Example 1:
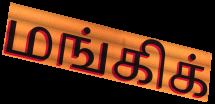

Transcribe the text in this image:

மங்கிக்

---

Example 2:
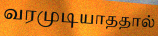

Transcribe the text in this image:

வரமுடியாததால்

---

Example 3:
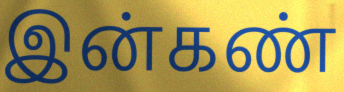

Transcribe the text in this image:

இன்கண்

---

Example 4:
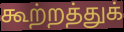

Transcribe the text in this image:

கூற்றத்துக்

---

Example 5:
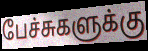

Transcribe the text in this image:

பேச்சுகளுக்கு